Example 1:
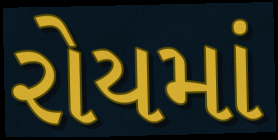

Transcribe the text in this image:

રોયમાં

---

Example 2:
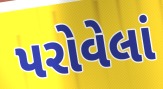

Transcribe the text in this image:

પરોવેલાં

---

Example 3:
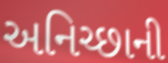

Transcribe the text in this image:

અનિચ્છાની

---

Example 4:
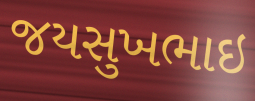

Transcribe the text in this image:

જયસુખભાઇ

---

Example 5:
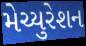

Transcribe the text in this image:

મેચ્યુરેશન